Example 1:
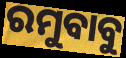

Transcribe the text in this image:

ରମୁବାବୁ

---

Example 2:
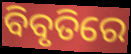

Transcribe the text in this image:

ବିବୃତିରେ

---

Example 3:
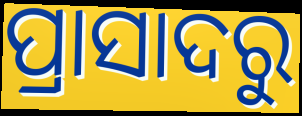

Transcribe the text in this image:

ପ୍ରାସାଦରୁ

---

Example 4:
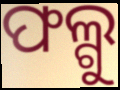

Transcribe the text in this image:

ଫଲ୍ଗୁ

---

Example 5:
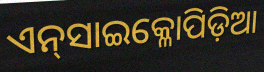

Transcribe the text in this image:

ଏନ୍‌ସାଇକ୍ଳୋପିଡ଼ିଆ